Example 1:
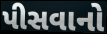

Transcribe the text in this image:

પીસવાનો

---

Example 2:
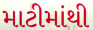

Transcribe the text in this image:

માટીમાંથી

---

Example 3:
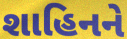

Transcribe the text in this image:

શાહિનને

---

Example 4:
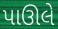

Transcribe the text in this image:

પાઊલે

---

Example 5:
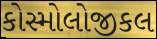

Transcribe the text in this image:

કોસ્મોલોજીકલ